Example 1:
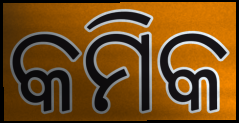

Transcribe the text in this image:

କମିକ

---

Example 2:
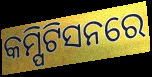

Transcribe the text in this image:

କମ୍ପିଟିସନରେ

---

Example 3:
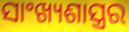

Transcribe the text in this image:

ସାଂଖ୍ୟଶାସ୍ତ୍ରର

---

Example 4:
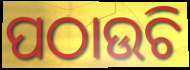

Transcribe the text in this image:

ପଠାଉଚି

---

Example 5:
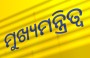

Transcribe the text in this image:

ମୁଖ୍ୟମନ୍ତ୍ରିତ୍ବ